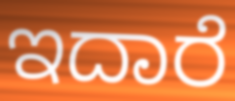
ಇದಾರೆ